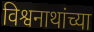
विश्वनाथांच्या